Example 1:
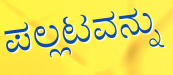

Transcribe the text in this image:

ಪಲ್ಲಟವನ್ನು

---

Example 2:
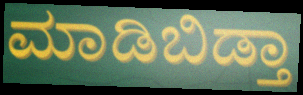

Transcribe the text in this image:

ಮಾಡಿಬಿಡ್ತಾ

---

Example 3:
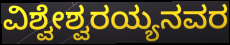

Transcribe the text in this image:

ವಿಶ್ವೇಶ್ವರಯ್ಯನವರ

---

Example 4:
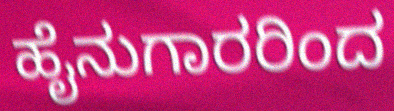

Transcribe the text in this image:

ಹೈನುಗಾರರಿಂದ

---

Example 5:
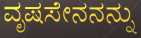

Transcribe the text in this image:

ವೃಷಸೇನನನ್ನು